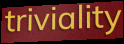
triviality